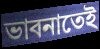
ভাবনাতেই